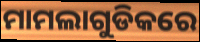
ମାମଲାଗୁଡିକରେ